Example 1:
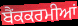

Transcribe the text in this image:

ਬੈਂਕਕਰਮੀਆਂ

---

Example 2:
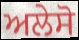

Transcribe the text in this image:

ਅਲੇਸੋ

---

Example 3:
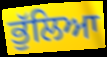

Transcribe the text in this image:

ਭੁੱਲਿਆ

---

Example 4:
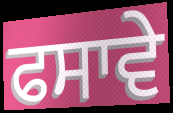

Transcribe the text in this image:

ਫਸਾਵੇ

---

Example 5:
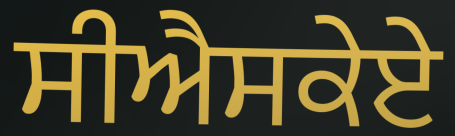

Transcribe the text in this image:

ਸੀਐਸਕੇਏ